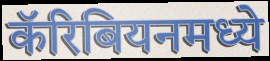
कॅरिबियनमध्ये